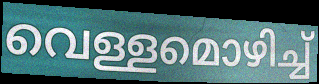
വെള്ളമൊഴിച്ച്